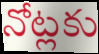
నోట్లకు